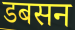
डबसन